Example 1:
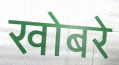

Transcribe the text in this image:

खोबरे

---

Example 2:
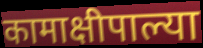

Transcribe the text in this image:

कामाक्षीपाल्या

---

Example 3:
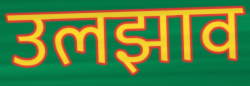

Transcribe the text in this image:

उलझाव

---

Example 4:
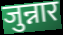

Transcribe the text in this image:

जुन्नार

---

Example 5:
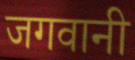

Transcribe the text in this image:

जगवानी